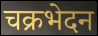
चक्रभेदन